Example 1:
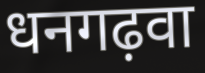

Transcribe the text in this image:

धनगढ़वा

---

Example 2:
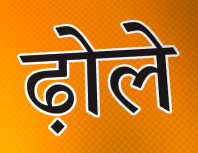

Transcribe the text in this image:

ढ़ोले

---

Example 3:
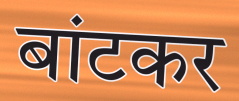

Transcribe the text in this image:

बांटकर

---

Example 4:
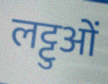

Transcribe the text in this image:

लट्टुओं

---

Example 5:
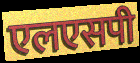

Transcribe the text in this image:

एलएसपी